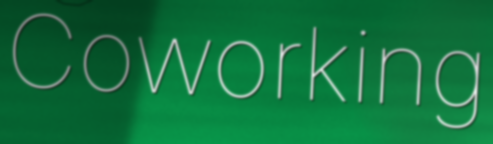
Coworking